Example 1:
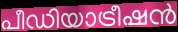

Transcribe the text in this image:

പീഡിയാട്രീഷൻ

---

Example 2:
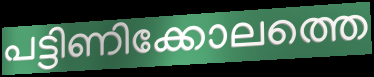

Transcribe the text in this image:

പട്ടിണിക്കോലത്തെ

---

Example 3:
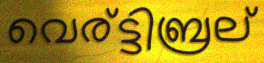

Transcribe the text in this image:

വെര്ട്ടിബ്രല്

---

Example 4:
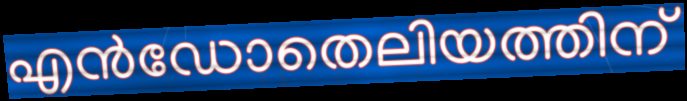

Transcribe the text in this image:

എൻഡോതെലിയത്തിന്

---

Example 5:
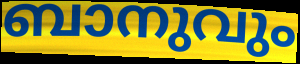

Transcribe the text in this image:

ബാനുവും